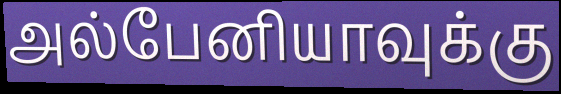
அல்பேனியாவுக்கு